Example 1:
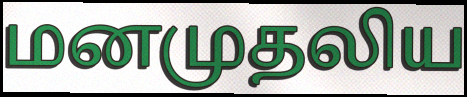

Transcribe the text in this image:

மனமுதலிய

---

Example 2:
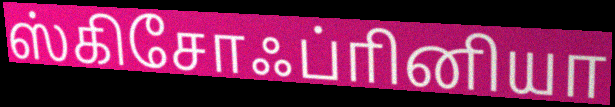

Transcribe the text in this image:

ஸ்கிசோஃப்ரினியா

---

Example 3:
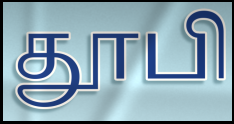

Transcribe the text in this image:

தூபி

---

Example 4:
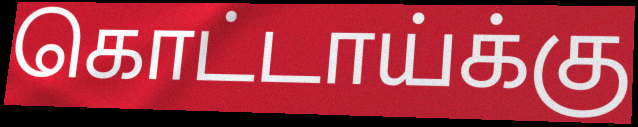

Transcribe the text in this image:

கொட்டாய்க்கு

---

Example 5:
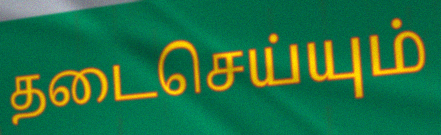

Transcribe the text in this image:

தடைசெய்யும்